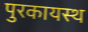
पुरकायस्थ